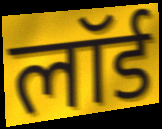
लॉर्ड